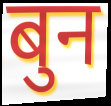
बुन